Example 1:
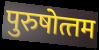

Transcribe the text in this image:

पुरुषोत्‍तम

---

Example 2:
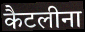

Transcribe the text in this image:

कैटलीना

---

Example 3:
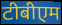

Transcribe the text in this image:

टीबीएम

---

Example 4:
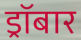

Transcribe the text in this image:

ड्रॉबार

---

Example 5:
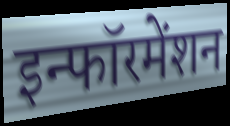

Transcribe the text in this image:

इन्फॉरमेंशन